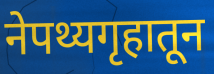
नेपथ्यगृहातून